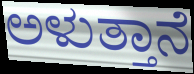
ಅಳುತ್ತಾನೆ